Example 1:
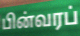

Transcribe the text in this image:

பின்வரப்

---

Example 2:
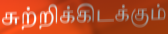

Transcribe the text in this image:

சுற்றிக்கிடக்கும்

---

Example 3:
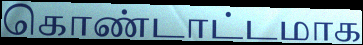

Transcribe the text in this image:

கொண்டாட்டமாக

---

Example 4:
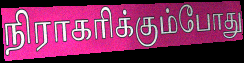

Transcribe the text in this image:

நிராகரிக்கும்போது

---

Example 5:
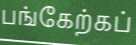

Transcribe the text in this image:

பங்கேற்கப்